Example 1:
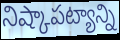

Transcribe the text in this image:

నిష్కాపట్యాన్ని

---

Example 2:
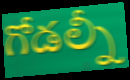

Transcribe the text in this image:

గోడల్నీ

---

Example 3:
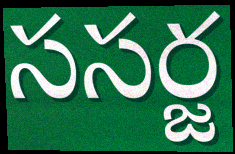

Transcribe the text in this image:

ససర్జ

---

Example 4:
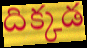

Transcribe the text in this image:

దిక్కడ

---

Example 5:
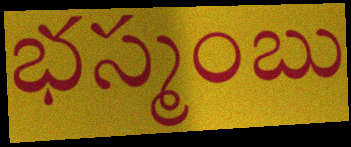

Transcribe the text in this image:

భస్మంబు